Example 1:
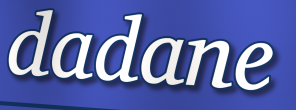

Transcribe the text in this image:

dadane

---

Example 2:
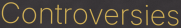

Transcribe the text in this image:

Controversies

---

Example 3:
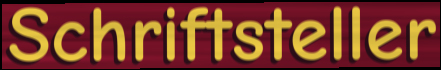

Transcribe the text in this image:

Schriftsteller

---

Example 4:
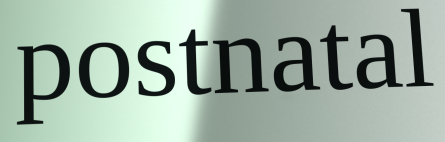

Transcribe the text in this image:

postnatal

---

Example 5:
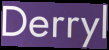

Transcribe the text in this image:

Derryl